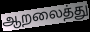
ஆறலைத்து